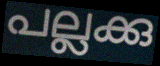
പല്ലക്കു